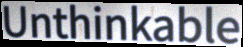
Unthinkable